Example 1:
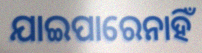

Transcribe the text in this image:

ଯାଇପାରେନାହିଁ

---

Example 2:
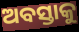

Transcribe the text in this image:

ଅବସ୍ତାକୁ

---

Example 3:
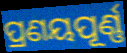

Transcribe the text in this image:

ପ୍ରଣୟପୂର୍ଣ୍ଣ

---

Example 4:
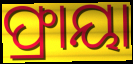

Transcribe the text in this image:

ଫ୍ରାୟା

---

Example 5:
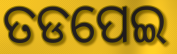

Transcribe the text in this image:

ତଡପେଇ